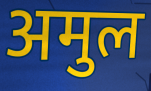
अमुल